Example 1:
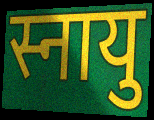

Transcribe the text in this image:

स्नायु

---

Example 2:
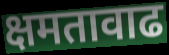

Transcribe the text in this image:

क्षमतावाढ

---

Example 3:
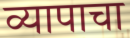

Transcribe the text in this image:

व्यापाचा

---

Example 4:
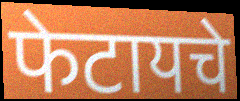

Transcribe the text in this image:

फेटायचे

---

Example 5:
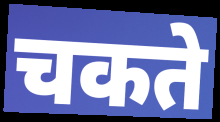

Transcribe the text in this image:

चकते